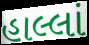
હાલ્લાં